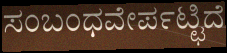
ಸಂಬಂಧವೇರ್ಪಟ್ಟಿದೆ